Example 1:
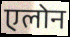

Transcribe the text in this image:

एलोन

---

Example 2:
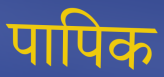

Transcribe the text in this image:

पापिक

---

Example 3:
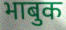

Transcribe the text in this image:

भाबुक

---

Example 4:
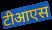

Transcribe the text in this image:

टीआएस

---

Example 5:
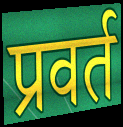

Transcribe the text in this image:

प्रवर्त